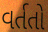
વર્તતો